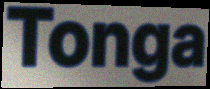
Tonga